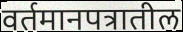
वर्तमानपत्रातील